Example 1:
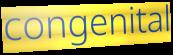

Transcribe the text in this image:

congenital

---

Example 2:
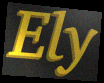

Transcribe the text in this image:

Ely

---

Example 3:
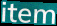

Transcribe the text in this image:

item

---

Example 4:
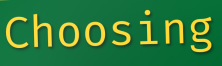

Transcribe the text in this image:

Choosing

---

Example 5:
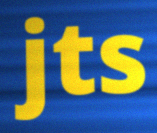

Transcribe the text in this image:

jts